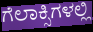
ಗೆಲಾಕ್ಸಿಗಳಲ್ಲಿ